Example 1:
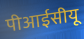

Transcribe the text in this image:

पीआईसीयू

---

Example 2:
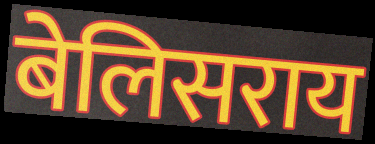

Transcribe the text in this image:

बेलिसराय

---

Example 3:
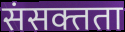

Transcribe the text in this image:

संसक्तता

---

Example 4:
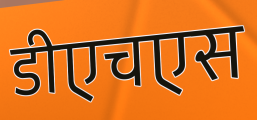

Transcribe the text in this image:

डीएचएस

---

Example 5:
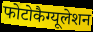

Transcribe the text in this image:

फोटोकैग्यूलेशन